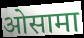
ओसामा